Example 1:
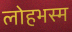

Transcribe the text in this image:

लोहभस्म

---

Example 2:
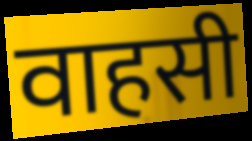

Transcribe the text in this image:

वाहसी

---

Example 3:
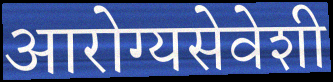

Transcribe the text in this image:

आरोग्यसेवेशी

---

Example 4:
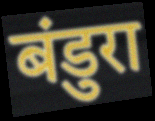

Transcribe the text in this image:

बंडुरा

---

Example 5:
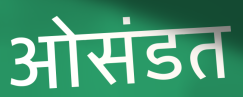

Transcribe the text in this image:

ओसंडत